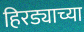
हिरड्याच्या